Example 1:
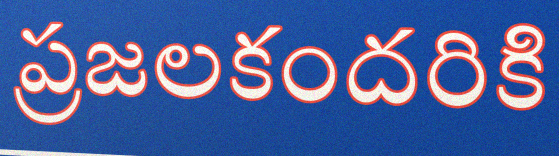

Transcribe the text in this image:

ప్రజలకందరికి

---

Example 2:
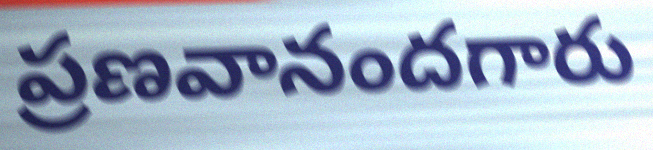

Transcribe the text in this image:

ప్రణవానందగారు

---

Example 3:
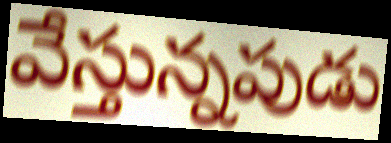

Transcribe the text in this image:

వేస్తున్నపుడు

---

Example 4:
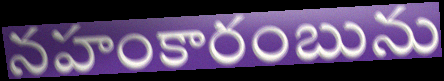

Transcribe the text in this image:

నహంకారంబును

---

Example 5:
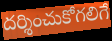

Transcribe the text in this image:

దర్శించుకోగలిగే